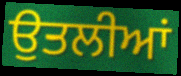
ਉਤਲੀਆਂ